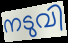
നടുവി